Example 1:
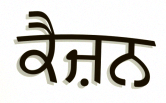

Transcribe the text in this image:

ਕੈਜ਼ਨ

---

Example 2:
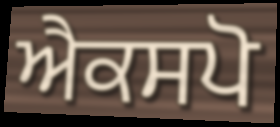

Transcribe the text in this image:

ਐਕਸਪੋ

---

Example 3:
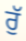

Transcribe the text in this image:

ਰੁੱ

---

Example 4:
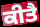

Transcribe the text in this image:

ਕੀਤੈ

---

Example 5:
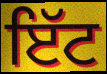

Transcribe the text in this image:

ਇੱਟ